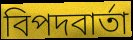
বিপদবার্তা